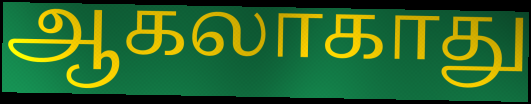
ஆகலாகாது